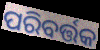
ପରିବର୍ତ୍ତକ